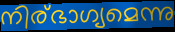
നിര്ഭാഗ്യമെന്നു